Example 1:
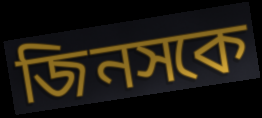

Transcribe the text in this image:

জিনসকে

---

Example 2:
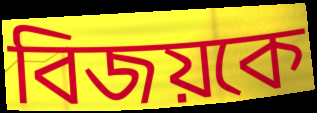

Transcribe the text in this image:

বিজয়কে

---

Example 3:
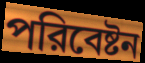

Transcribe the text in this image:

পরিবেষ্টন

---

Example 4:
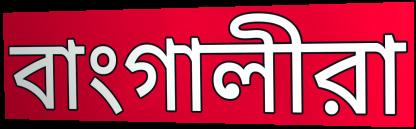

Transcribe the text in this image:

বাংগালীরা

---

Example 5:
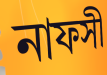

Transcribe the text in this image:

নাফসী